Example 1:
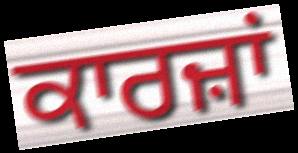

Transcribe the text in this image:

ਕਾਰਜ਼ਾਂ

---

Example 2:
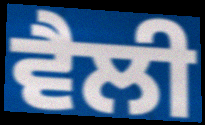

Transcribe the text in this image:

ਵੈਲੀ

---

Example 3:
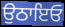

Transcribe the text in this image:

ਉਠਾਇਓ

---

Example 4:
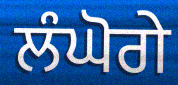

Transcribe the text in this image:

ਲੰਘੋਗੇ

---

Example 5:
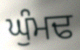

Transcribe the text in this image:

ਘੁੰਮਢ